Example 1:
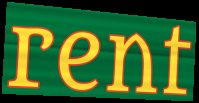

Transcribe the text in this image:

rent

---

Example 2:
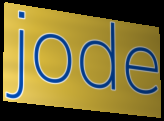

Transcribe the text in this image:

jode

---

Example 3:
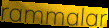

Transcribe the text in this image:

rammalar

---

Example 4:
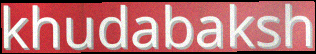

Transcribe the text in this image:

khudabaksh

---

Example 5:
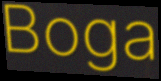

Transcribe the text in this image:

Boga